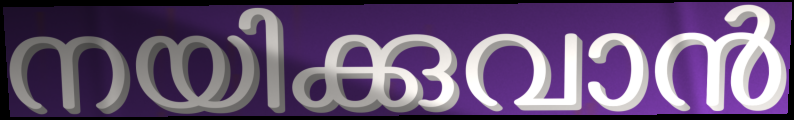
നയിക്കുവാൻ